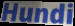
Hundi